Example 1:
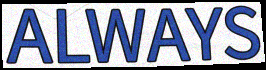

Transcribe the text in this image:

ALWAYS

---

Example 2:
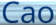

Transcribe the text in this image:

Cao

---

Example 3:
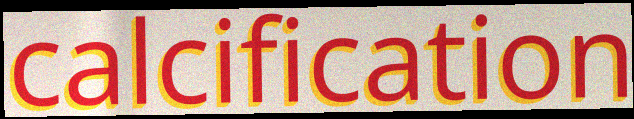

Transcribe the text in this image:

calcification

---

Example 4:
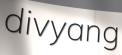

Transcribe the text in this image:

divyang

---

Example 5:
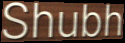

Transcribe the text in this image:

Shubh